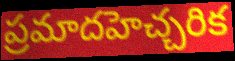
ప్రమాదహెచ్చరిక